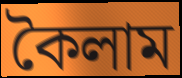
কৈলাম